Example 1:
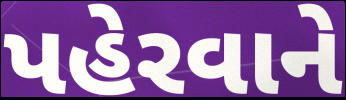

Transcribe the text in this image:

પહેરવાને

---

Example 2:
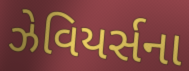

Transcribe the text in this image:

ઝેવિયર્સના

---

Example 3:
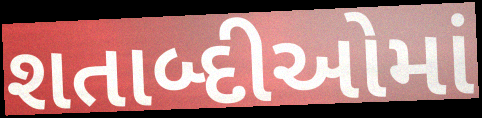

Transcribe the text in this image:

શતાબ્દીઓમાં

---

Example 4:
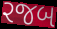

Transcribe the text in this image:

રજબ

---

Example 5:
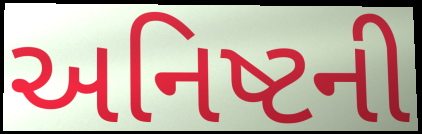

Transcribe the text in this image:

અનિષ્ટની